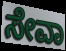
ಸೇವಾ